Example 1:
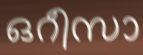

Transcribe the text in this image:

ഒറീസാ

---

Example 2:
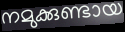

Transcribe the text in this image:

നമുക്കുണ്ടായ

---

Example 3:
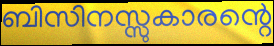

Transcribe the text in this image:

ബിസിനസ്സുകാരന്റെ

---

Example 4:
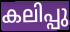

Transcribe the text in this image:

കലിപ്പു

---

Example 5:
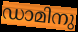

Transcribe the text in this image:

ഡാമിനു